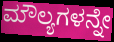
ಮೌಲ್ಯಗಳನ್ನೇ